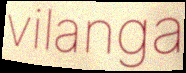
vilanga